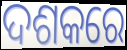
ଦଶକରେ